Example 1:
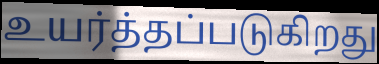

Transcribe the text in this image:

உயர்த்தப்படுகிறது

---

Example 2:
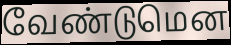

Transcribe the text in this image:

வேண்டுமென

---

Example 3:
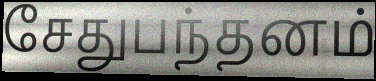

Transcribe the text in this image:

சேதுபந்தனம்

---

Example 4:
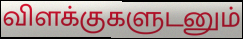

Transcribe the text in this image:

விளக்குகளுடனும்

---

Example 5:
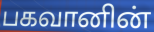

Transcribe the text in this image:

பகவானின்